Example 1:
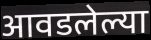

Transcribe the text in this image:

आवडलेल्या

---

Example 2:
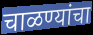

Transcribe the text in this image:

चाळण्यांचा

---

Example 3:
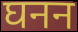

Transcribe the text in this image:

घनन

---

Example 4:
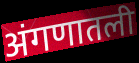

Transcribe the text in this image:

अंगणातली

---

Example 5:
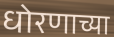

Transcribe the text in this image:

धोरणाच्या